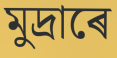
মুদ্ৰাৰে